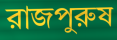
রাজপুরুষ